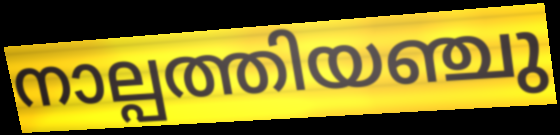
നാല്പത്തിയഞ്ചു